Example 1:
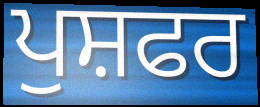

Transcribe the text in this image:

ਪੁਸ਼ਫਰ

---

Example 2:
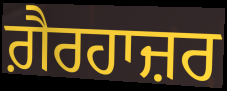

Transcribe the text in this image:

ਗ਼ੈਰਹਾਜ਼ਰ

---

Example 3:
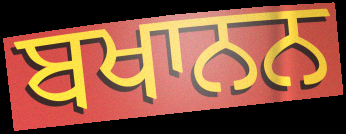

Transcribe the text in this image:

ਬਖਾਨਨ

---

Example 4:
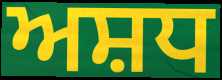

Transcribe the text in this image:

ਅਸ਼ਧ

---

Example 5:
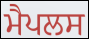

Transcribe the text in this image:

ਮੈਪਲਸ